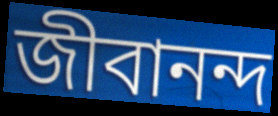
জীবানন্দ